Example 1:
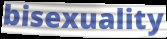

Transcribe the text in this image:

bisexuality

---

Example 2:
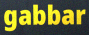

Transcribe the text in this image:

gabbar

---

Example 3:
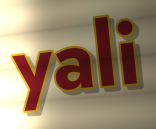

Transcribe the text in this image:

yali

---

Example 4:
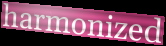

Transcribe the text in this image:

harmonized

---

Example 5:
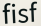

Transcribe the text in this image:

fisf